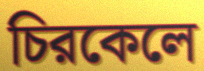
চিরকেলে